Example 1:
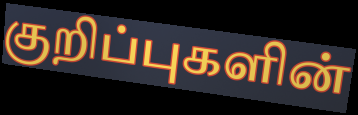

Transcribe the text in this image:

குறிப்புகளின்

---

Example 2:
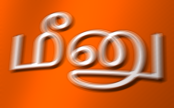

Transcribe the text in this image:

மீனு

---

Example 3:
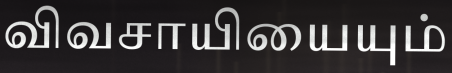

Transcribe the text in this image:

விவசாயியையும்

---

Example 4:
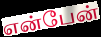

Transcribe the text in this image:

என்பேன்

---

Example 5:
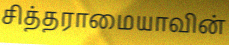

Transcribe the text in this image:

சித்தராமையாவின்